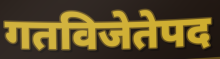
गतविजेतेपद